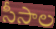
సీసాల